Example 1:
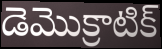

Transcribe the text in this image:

డెమొక్రాటిక్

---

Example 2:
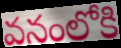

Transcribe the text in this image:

వనంలోకి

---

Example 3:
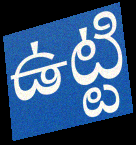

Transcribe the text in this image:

ఉట్టి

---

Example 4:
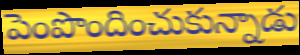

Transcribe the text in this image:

పెంపొందించుకున్నాడు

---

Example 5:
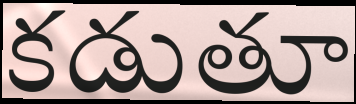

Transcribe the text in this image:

కడుతూ